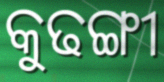
କୁଢଙ୍ଗୀ